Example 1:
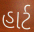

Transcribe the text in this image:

હાર્ટ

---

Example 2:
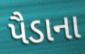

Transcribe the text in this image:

પૈડાના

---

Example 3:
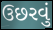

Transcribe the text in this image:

ઉછરવું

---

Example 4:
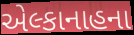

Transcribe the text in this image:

એલ્કાનાહના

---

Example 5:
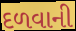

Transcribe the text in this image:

દળવાની